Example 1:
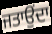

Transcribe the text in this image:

ਜਤਾਉਂਦਾ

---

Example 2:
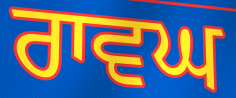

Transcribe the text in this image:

ਰਾਵਘ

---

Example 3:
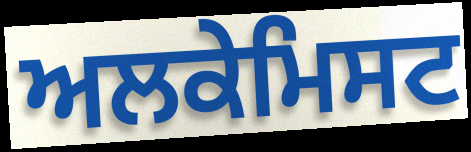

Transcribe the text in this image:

ਅਲਕੇਮਿਸਟ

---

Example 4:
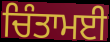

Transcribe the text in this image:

ਚਿੰਤਾਮਈ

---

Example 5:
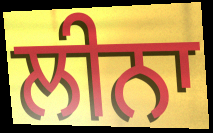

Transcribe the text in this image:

ਲੀਨਾ